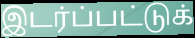
இடர்ப்பட்டுக்